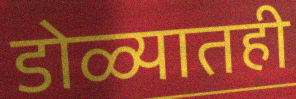
डोळ्यातही